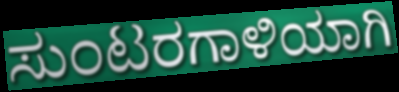
ಸುಂಟರಗಾಳಿಯಾಗಿ